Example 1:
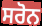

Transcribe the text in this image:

ਸਰੋਨ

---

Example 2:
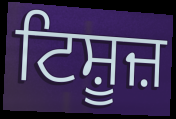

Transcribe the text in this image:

ਟਿਸ਼ੂਜ਼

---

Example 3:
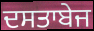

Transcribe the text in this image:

ਦਸਤਾਬੇਜ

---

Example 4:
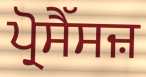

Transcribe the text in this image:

ਪ੍ਰੋਸੈੱਸਜ਼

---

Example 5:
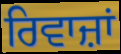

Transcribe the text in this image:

ਰਿਵਾਜ਼ਾਂ